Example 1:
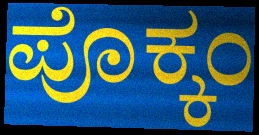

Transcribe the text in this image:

ಪೊಕ್ಕಂ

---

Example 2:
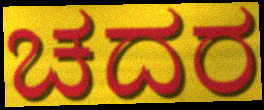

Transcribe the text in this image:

ಚದರ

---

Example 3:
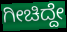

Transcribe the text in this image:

ಗೀಚಿದ್ದೇ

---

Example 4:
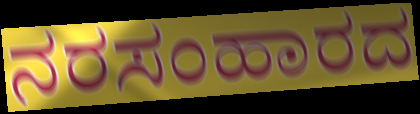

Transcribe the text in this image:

ನರಸಂಹಾರದ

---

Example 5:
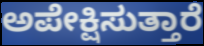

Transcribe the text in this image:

ಅಪೇಕ್ಷಿಸುತ್ತಾರೆ